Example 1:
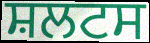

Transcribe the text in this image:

ਸ਼ਲਟਸ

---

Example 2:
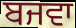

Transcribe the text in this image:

ਬਜਵਾ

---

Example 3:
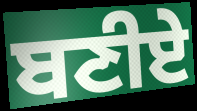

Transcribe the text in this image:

ਬਣੀਏ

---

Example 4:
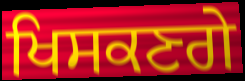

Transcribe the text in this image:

ਖਿਸਕਣਗੇ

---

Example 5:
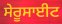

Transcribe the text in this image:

ਸੇਰੂਸਾਈਟ